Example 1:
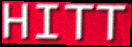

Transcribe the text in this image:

HITT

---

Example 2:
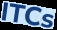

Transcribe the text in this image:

ITCs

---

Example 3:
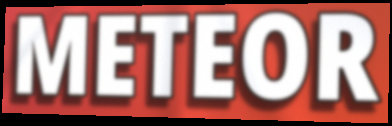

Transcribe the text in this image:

METEOR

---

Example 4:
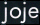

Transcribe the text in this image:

joje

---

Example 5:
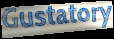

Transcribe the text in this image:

Gustatory